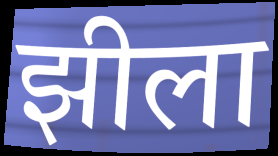
झीला